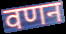
वणन